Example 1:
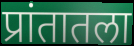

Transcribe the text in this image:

प्रांतातला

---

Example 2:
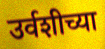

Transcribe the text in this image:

उर्वशीच्या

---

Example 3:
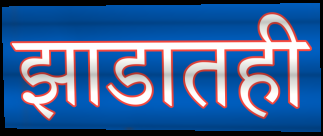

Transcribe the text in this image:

झाडातही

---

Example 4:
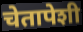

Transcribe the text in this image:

चेतापेशी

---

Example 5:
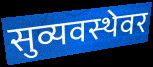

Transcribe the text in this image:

सुव्यवस्थेवर